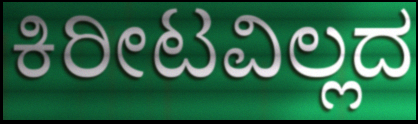
ಕಿರೀಟವಿಲ್ಲದ